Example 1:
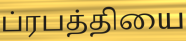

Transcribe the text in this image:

ப்ரபத்தியை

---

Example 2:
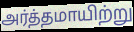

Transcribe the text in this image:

அர்த்தமாயிற்று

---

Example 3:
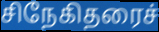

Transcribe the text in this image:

சிநேகிதரைச்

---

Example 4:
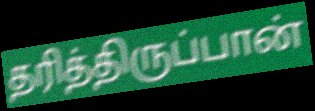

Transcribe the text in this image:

தரித்திருப்பான்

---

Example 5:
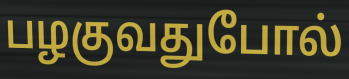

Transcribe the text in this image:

பழகுவதுபோல்